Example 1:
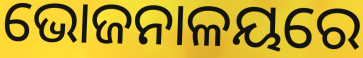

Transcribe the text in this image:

ଭୋଜନାଳୟରେ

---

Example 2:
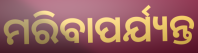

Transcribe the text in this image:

ମରିବାପର୍ଯ୍ୟନ୍ତ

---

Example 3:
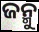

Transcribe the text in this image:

ଜନ୍ମୁ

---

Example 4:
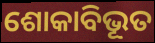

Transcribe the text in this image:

ଶୋକାବିଭୂତ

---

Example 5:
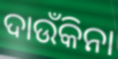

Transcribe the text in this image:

ଦାଉଁକିନା